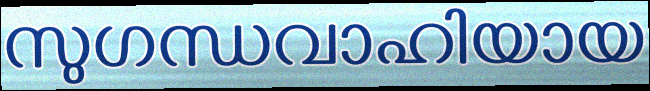
സുഗന്ധവാഹിയായ